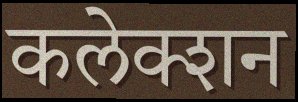
कलेक्शन